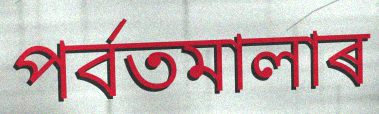
পৰ্বতমালাৰ